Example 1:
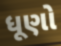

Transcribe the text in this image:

ધૂણો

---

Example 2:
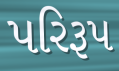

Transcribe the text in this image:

પરિરૂપ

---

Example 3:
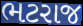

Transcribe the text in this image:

ભટરાજ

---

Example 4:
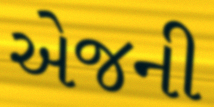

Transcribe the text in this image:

એજની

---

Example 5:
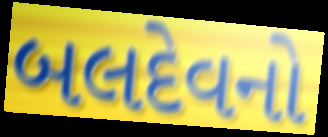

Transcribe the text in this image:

બલદેવનો